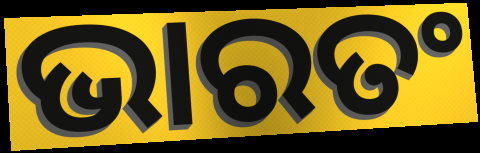
ଭାରତଂ